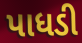
પાધડી